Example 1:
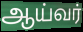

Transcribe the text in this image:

ஆய்வர்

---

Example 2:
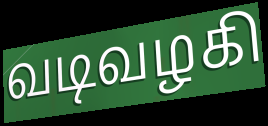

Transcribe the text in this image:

வடிவழகி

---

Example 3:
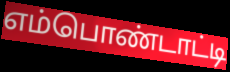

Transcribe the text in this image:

எம்பொண்டாட்டி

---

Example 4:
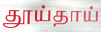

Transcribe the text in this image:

தூய்தாய்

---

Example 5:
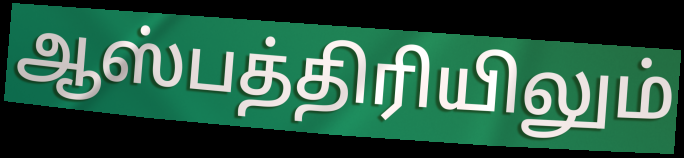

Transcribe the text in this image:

ஆஸ்பத்திரியிலும்